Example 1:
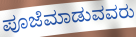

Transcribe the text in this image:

ಪೂಜೆಮಾಡುವವರು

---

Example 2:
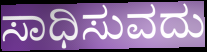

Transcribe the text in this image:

ಸಾಧಿಸುವದು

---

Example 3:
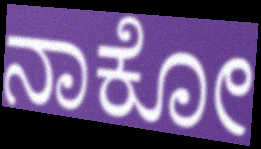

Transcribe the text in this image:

ನಾಕೋ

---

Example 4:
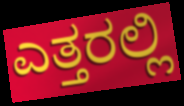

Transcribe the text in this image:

ಎತ್ತರಲ್ಲಿ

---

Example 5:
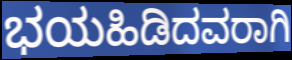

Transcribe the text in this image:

ಭಯಹಿಡಿದವರಾಗಿ